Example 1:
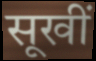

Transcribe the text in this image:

सूखीं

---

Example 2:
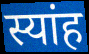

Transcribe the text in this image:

स्यांह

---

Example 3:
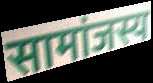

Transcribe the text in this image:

सामांजस्य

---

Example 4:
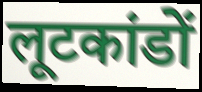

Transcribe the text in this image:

लूटकांडों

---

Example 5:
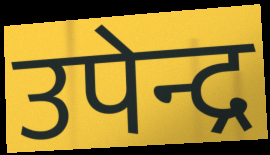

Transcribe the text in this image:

उपेन्द्र